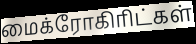
மைக்ரோகிரிட்கள்